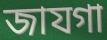
জাযগা